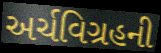
અર્ચવિગ્રહની